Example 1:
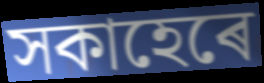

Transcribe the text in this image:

সকাহেৰে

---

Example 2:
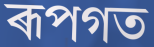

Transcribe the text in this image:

ৰূপগত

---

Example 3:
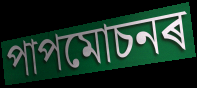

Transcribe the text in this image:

পাপমোচনৰ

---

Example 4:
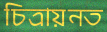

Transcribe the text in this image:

চিত্ৰায়নত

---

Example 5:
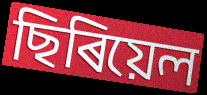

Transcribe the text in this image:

ছিৰিয়েল